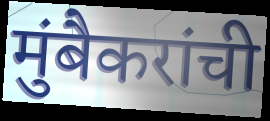
मुंबैकरांची